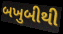
બખુબીથી